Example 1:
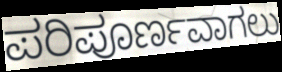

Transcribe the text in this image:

ಪರಿಪೂರ್ಣವಾಗಲು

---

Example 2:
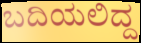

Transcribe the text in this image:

ಬದಿಯಲಿದ್ದ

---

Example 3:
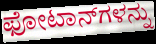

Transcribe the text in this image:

ಫೋಟಾನ್‌ಗಳನ್ನು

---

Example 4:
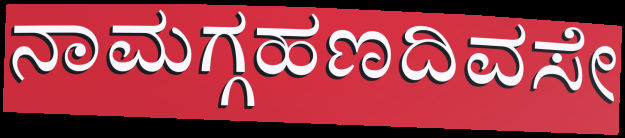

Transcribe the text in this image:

ನಾಮಗ್ಗಹಣದಿವಸೇ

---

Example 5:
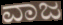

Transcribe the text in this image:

ವಾಜ